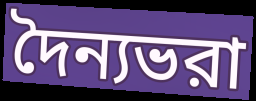
দৈন্যভরা